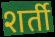
शर्ती